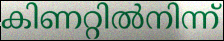
കിണറ്റിൽനിന്ന്